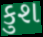
કુશ